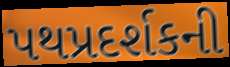
પથપ્રદર્શકની